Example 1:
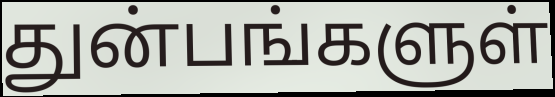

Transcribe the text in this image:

துன்பங்களுள்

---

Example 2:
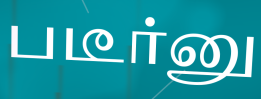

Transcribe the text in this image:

படீர்னு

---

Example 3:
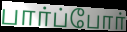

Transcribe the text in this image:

பார்ப்போர்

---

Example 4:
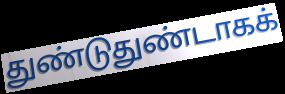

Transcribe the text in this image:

துண்டுதுண்டாகக்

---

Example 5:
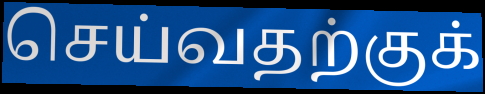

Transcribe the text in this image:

செய்வதற்குக்